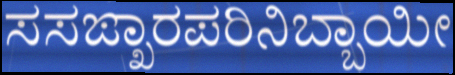
ಸಸಙ್ಖಾರಪರಿನಿಬ್ಬಾಯೀ